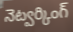
నెట్వర్కింగ్